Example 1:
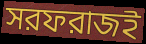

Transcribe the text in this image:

সরফরাজই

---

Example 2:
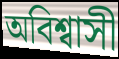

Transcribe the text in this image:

অবিশ্বাসী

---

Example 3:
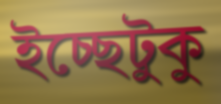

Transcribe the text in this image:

ইচ্ছেটুকু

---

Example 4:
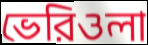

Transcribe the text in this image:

ভেরিওলা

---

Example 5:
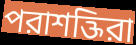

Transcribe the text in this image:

পরাশক্তিরা